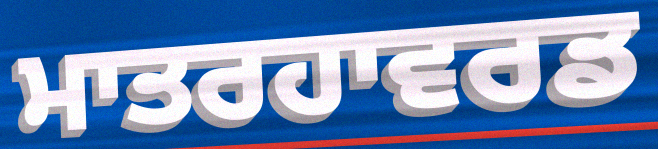
ਮਾਤਰਹਾਵਰਡ